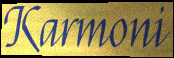
Karmoni